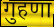
गुहणा